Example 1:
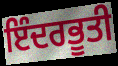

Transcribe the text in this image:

ਇੰਦਰਭੂਤੀ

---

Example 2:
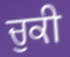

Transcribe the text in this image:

ਚੁਕੀ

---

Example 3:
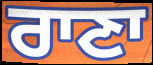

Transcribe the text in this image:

ਰਾਣਾ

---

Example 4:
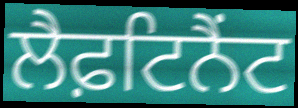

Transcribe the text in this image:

ਲੈਫ਼ਟਿਨੈਂਟ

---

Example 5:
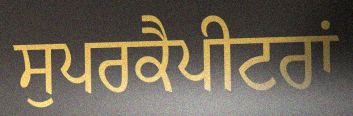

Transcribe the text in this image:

ਸੁਪਰਕੈਪੀਟਰਾਂ